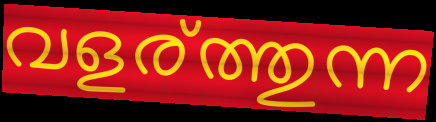
വളര്ത്തുന്ന